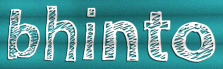
bhinto